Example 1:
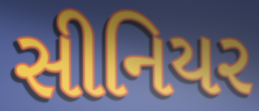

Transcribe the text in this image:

સીનિયર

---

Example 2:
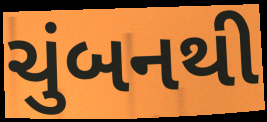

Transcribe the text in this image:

ચુંબનથી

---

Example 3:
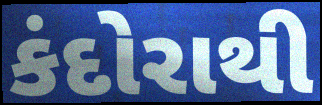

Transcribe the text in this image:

કંદોરાથી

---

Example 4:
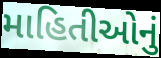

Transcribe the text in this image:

માહિતીઓનું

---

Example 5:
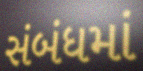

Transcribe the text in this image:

સંબંધમાં